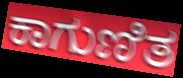
ಕಾಗುಣಿತ